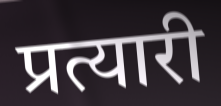
प्रत्यारी